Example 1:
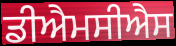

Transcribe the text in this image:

ਡੀਐਮਸੀਐਸ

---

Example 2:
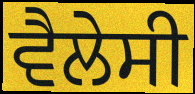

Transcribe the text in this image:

ਵੈਲੇਸੀ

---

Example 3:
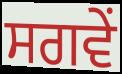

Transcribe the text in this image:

ਸਗਵੇਂ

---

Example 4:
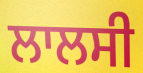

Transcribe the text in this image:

ਲਾਲਸੀ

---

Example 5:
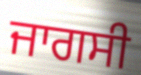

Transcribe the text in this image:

ਜਾਗਸੀ